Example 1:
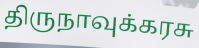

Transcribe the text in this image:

திருநாவுக்கரசு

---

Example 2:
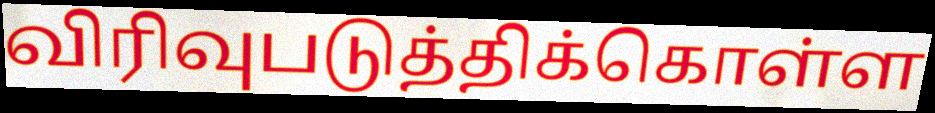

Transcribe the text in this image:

விரிவுபடுத்திக்கொள்ள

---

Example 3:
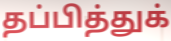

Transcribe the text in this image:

தப்பித்துக்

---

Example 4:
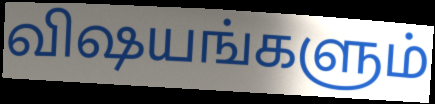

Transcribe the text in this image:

விஷயங்களும்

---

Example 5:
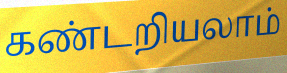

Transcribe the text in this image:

கண்டறியலாம்